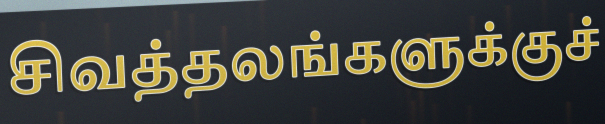
சிவத்தலங்களுக்குச்